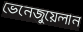
ভেনেজুয়েলান